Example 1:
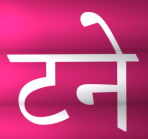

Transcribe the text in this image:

टने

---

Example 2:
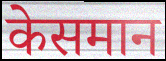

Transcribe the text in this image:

केसमान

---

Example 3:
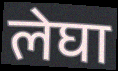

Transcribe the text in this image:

लेघा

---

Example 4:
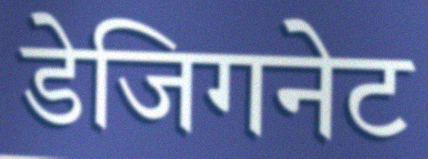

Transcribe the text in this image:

डेजिगनेट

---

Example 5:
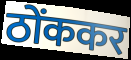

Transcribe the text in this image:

ठोंककर